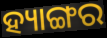
ହ୍ୟାଙ୍ଗର